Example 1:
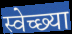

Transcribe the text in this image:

स्वेच्छ्या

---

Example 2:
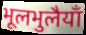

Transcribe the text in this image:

भूलभुलैयाँ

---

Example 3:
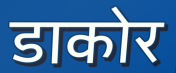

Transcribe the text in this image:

डाकोर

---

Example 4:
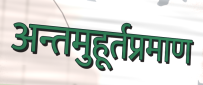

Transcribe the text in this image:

अन्तमुहूर्तप्रमाण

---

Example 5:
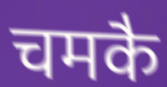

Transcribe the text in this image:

चमकै